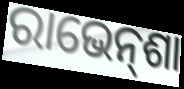
ରାଭେନ୍‌ଶା